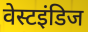
वेस्टइंडिज